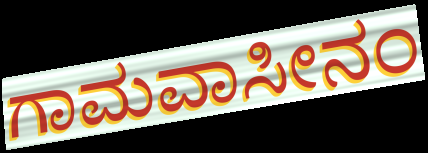
ಗಾಮವಾಸೀನಂ